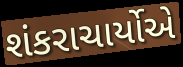
શંકરાચાર્યોએ